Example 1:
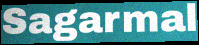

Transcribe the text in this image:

Sagarmal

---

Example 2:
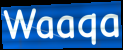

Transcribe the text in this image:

Waaqa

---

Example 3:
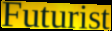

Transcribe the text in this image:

Futurist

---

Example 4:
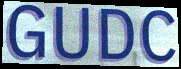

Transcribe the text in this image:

GUDC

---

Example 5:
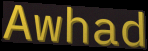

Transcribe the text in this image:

Awhad